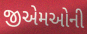
જીએમઓની